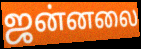
ஜன்னலை